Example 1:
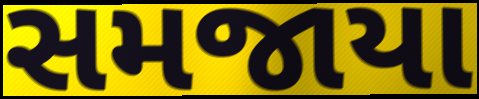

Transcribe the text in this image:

સમજાયા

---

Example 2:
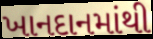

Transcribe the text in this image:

ખાનદાનમાંથી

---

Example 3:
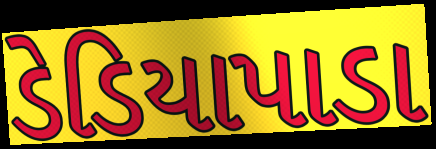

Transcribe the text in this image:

ડેડિયાપાડા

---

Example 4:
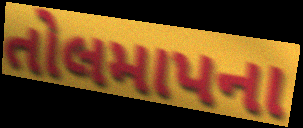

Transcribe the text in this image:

તોલમાપના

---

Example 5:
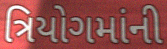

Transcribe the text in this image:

ત્રિયોગમાંની